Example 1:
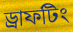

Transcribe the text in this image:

ড্রাফটিং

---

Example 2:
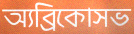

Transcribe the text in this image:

অ্যব্রিকোসভ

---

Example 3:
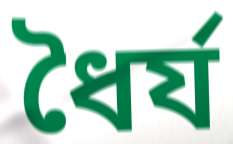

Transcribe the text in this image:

ধৈর্য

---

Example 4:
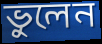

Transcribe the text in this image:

ভুলেন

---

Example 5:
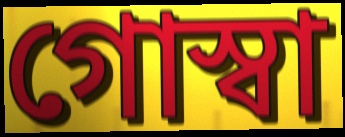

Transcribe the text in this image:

গোস্বা